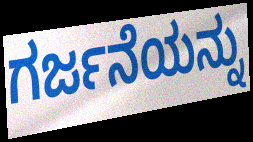
ಗರ್ಜನೆಯನ್ನು